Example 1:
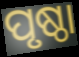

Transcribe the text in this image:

ପୃଷ୍ଠା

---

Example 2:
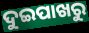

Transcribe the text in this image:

ଦୁଇପାଖରୁ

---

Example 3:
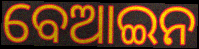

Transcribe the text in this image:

ବେଆଇନ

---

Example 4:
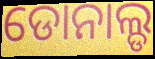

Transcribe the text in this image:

ଡୋନାଲ୍ଡ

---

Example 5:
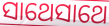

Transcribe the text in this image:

ସାଥେସାଥେ